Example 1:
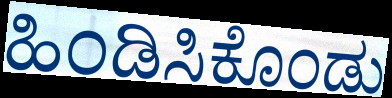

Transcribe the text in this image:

ಹಿಂಡಿಸಿಕೊಂಡು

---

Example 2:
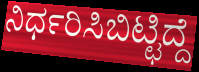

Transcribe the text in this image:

ನಿರ್ಧರಿಸಿಬಿಟ್ಟಿದ್ದೆ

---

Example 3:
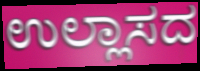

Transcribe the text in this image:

ಉಲ್ಲಾಸದ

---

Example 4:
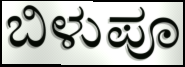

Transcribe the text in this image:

ಬಿಳುಪೂ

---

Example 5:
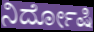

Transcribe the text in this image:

ನಿರ್ದೋಷಿ